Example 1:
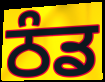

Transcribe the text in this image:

ਠੰਡ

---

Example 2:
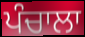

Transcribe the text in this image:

ਪੰਚਾਲਾ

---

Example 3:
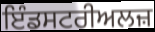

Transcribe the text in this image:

ਇੰਡਸਟਰੀਅਲਜ਼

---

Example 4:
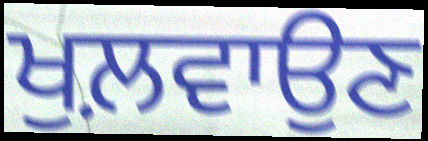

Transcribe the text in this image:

ਖੁਲ਼ਵਾਉਣ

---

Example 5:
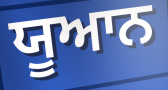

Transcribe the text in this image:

ਯੂਆਨ